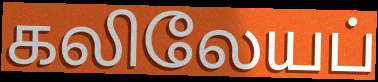
கலிலேயப்